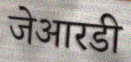
जेआरडी